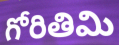
గోరితిమి